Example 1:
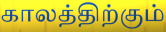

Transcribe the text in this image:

காலத்திற்கும்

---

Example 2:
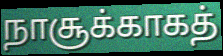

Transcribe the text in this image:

நாசூக்காகத்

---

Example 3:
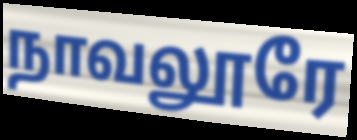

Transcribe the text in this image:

நாவலூரே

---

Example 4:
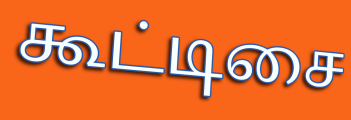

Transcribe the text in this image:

கூட்டிசை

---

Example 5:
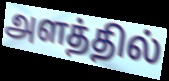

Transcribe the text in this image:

அளத்தில்